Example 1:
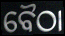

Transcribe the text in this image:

ବୈଠା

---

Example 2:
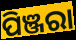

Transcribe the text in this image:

ପିଞ୍ଜରା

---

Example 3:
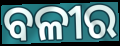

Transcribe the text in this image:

ବଳୀର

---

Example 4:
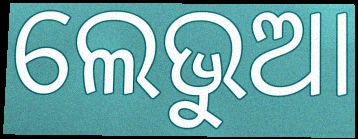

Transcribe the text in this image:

ଲେଭୁଆ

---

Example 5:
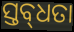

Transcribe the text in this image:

ସ୍ତବ୍‌ଧତା